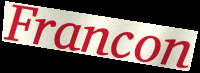
Francon